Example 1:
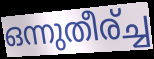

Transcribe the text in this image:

ഒന്നുതീര്ച്ച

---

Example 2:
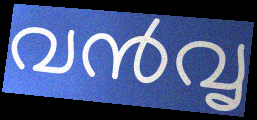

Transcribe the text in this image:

വൻവൃ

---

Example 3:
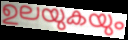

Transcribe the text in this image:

ഉലയുകയും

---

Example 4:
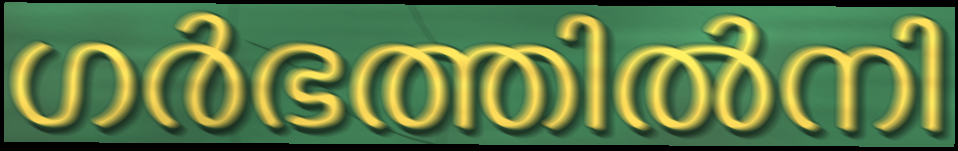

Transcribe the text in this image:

ഗർഭത്തിൽനി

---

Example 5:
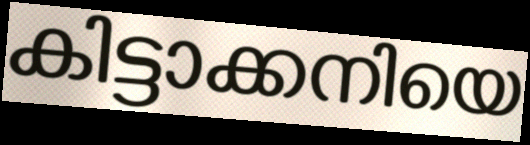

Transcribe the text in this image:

കിട്ടാക്കനിയെ